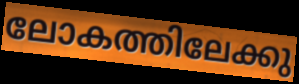
ലോകത്തിലേക്കു